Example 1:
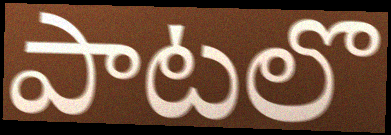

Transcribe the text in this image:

పాటలొ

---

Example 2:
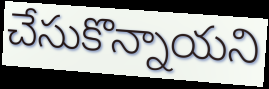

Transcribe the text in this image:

చేసుకొన్నాయని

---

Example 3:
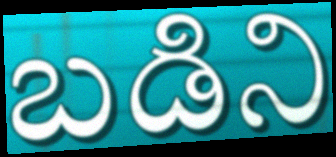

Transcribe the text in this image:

బడిని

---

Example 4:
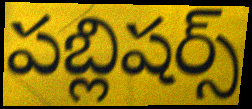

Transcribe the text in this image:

పబ్లిషర్స్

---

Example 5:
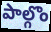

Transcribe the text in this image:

పాల్గొం